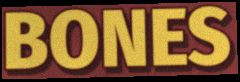
BONES